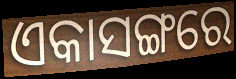
ଏକାସଙ୍ଗରେ